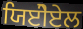
ਯਿਈੇਏਲ